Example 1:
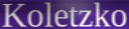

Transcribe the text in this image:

Koletzko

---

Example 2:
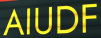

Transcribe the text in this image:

AIUDF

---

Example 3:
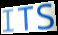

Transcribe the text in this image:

ITS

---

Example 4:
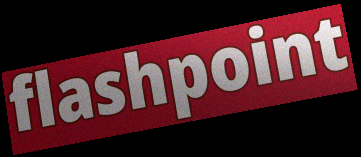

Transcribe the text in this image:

flashpoint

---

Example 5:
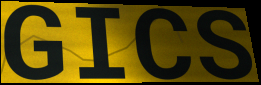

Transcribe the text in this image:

GICS